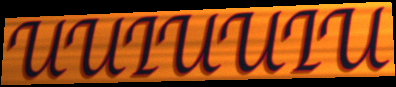
UUIUUIU